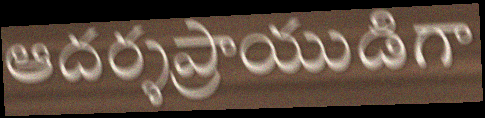
ఆదర్శప్రాయుడిగా